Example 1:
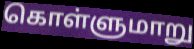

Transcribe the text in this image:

கொள்ளுமாறு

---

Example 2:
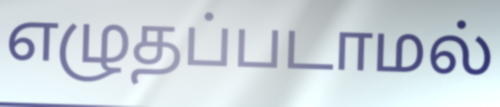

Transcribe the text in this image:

எழுதப்படாமல்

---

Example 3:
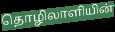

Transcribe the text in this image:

தொழிலாளியின்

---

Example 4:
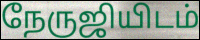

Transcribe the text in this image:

நேருஜியிடம்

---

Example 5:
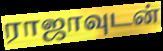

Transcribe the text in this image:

ராஜாவுடன்